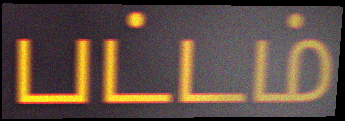
பட்டம்